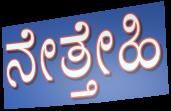
ನೇತ್ತೇಹಿ